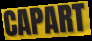
CAPART